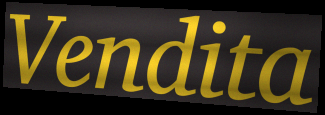
Vendita